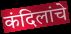
कंदिलांचे